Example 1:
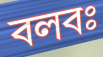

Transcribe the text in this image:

বলবঃ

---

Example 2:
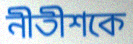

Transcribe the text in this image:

নীতীশকে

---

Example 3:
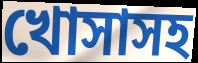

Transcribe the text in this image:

খোসাসহ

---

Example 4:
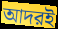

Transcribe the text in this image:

আদরই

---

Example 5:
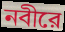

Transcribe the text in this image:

নবীরে